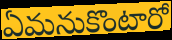
ఏమనుకొంటారో